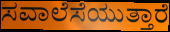
ಸವಾಲೆಸೆಯುತ್ತಾರೆ